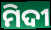
ମିଦୀ